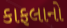
કાફલાનો